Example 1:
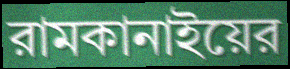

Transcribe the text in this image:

রামকানাইয়ের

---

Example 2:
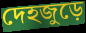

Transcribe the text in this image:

দেহজুড়ে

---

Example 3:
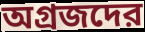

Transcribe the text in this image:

অগ্রজদের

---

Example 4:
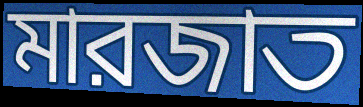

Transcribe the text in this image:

মারজাত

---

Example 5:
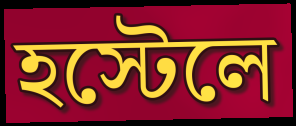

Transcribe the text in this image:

হস্টেলে